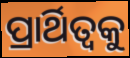
ପ୍ରାର୍ଥିତ୍ୱକୁ